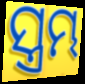
ସ୍ତ୍ରମ୍ଭ